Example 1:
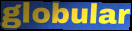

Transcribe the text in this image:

globular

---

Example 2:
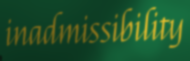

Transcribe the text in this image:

inadmissibility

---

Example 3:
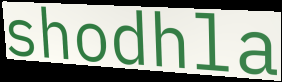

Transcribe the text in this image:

shodhla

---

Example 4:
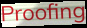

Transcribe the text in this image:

Proofing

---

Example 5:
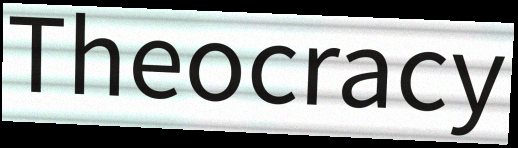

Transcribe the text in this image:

Theocracy